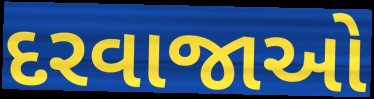
દરવાજાઓ